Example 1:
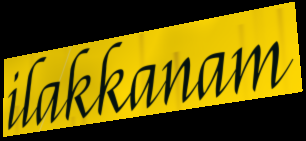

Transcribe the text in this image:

ilakkanam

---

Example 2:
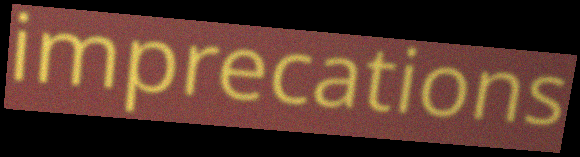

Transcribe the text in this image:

imprecations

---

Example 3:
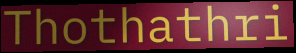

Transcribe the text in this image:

Thothathri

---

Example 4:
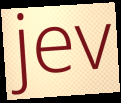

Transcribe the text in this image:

jev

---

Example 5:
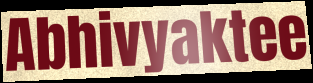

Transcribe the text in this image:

Abhivyaktee